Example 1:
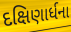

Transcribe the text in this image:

દક્ષિણાર્ધના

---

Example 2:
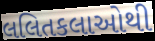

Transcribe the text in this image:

લલિતકલાઓથી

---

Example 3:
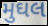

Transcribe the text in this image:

મુઘલ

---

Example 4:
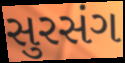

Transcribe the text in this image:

સુરસંગ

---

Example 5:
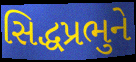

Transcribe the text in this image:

સિદ્ધપ્રભુને